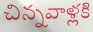
చిన్నవాళ్లకి